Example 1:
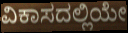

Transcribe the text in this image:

ವಿಕಾಸದಲ್ಲಿಯೇ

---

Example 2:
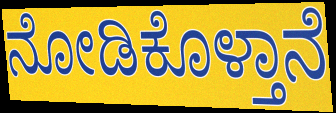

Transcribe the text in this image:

ನೋಡಿಕೊಳ್ತಾನೆ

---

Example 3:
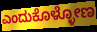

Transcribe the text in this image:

ಎಂದುಕೊಳ್ಳೋಣ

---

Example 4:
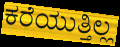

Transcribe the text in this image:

ಕರೆಯುತ್ತಿಲ್ಲ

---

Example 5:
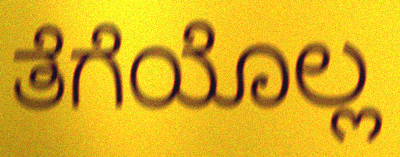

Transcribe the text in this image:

ತೆಗೆಯೊಲ್ಲ